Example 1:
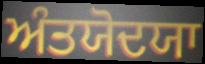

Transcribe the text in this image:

ਅੰਤਯੋਦਯਾ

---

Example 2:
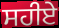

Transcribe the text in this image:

ਸਹੀਏ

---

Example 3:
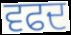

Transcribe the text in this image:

ਵਫਦ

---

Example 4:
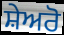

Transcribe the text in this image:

ਸ਼ੇਅਰੋ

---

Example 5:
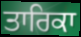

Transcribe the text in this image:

ਤਾਰਿਕਾ